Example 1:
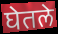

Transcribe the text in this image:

घेतले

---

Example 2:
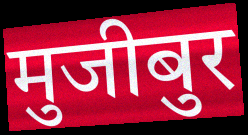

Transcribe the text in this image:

मुजीबुर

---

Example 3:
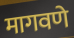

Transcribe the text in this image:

मागवणे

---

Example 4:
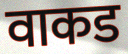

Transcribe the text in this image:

वाकड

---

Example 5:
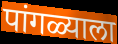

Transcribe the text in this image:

पांगळ्याला